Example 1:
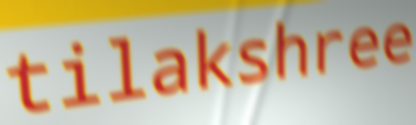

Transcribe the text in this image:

tilakshree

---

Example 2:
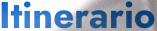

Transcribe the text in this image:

Itinerario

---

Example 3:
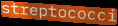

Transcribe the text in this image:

streptococci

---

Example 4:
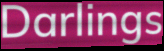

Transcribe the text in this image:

Darlings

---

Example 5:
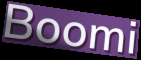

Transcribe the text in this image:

Boomi